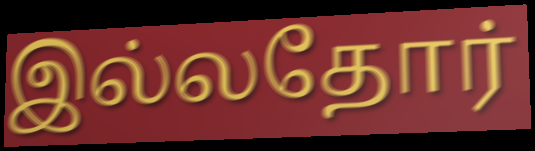
இல்லதோர்